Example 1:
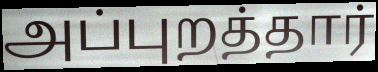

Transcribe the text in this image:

அப்புறத்தார்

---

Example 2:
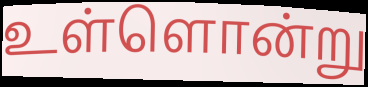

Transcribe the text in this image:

உள்ளொன்று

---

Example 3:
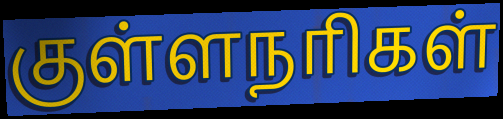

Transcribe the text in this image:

குள்ளநரிகள்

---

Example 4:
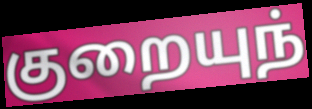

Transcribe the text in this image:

குறையுந்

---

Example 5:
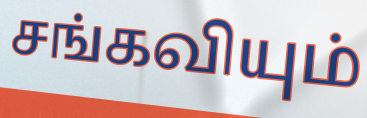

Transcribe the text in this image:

சங்கவியும்